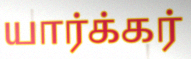
யார்க்கர்